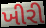
ખીરી